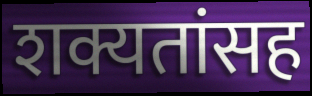
शक्यतांसह